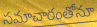
సమాచారంతోనూ